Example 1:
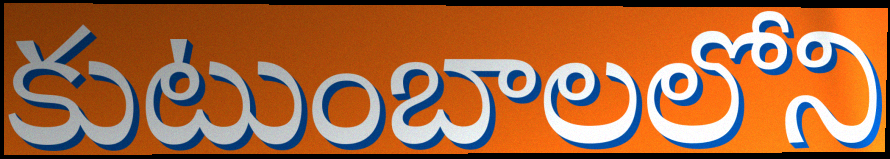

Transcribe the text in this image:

కుటుంబాలలోని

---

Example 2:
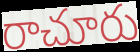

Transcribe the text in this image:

రాచూరు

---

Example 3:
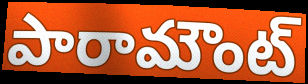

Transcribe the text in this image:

పారామౌంట్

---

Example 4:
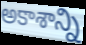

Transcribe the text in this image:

అకాశాన్ని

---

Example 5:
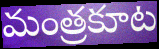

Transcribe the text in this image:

మంత్రకూట